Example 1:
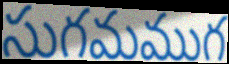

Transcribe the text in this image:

సుగమముగ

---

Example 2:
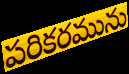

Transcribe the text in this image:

పరికరమును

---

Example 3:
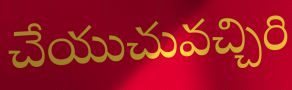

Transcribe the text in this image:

చేయుచువచ్చిరి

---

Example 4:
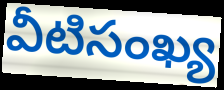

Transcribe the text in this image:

వీటిసంఖ్య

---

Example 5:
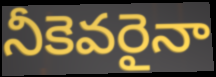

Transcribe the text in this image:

నీకెవరైనా